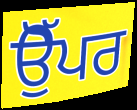
ਉੋੱਪਰ